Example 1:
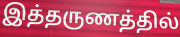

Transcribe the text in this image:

இத்தருணத்தில்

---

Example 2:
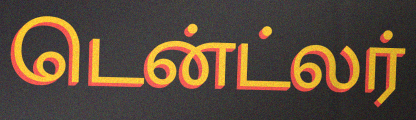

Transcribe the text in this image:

டென்ட்லர்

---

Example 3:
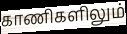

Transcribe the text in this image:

காணிகளிலும்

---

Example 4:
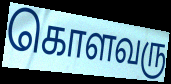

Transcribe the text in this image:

கொளவரு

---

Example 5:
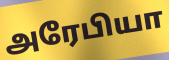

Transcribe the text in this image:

அரேபியா